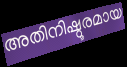
അതിനിഷ്ഠൂരമായ